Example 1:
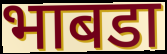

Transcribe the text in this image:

भाबडा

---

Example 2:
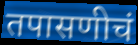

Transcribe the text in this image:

तपासणीचं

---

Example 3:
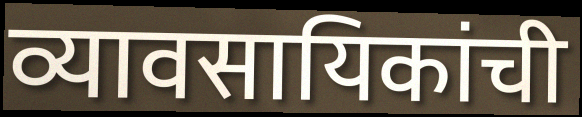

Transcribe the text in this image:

व्यावसायिकांची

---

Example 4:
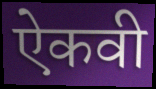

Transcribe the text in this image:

ऐकवी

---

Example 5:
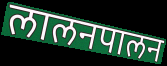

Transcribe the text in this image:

लालनपालन